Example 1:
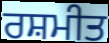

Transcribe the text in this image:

ਰਸ਼ਮੀਤ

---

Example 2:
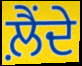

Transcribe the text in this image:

ਲ਼ੈਂਦੇ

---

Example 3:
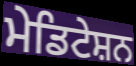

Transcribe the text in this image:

ਮੇਡਿਟੇਸ਼ਨ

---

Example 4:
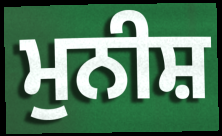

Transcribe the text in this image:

ਮੁਨੀਸ਼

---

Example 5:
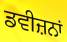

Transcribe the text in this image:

ਡਵੀਜ਼ਨਾਂ